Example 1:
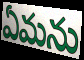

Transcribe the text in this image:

ఏమను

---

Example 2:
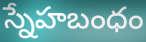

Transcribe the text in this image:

స్నేహబంధం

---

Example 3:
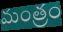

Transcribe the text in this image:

మంత్రం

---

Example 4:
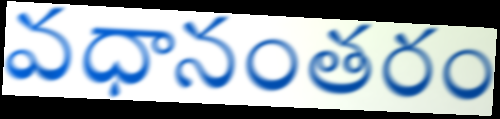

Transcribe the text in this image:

వధానంతరం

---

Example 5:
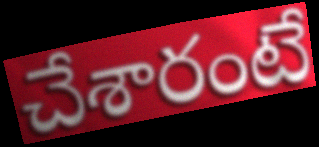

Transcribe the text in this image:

చేశారంటే